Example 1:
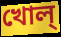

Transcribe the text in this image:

খোল্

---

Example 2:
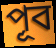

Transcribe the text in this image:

পূব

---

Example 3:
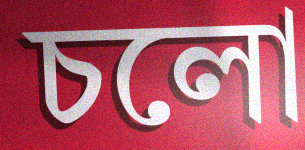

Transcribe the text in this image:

চলো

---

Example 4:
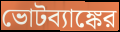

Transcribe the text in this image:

ভোটব্যাঙ্কের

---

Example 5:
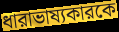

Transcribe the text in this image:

ধারাভাষ্যকারকে